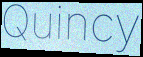
Quincy